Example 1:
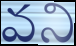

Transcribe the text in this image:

వని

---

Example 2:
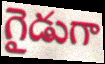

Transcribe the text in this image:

గైడుగా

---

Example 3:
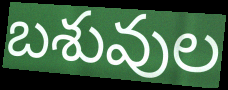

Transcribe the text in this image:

బశువుల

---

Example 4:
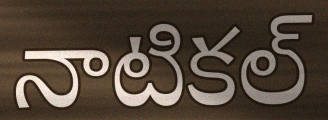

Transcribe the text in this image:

నాటికల్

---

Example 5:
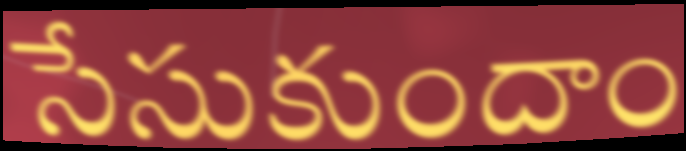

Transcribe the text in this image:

సేసుకుందాం